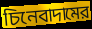
চিনেবাদামের